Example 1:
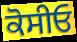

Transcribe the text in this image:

ਕੋਸੀਓ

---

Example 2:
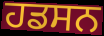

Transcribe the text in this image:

ਹਡਸਨ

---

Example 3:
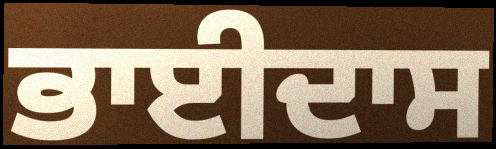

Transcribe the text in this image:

ਭਾਈਦਾਸ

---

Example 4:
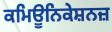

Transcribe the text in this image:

ਕਮਿਊਨਿਕੇਸ਼ਨਜ਼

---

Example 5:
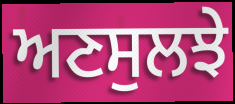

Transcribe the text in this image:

ਅਣਸੁਲਝੇ